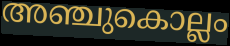
അഞ്ചുകൊല്ലം